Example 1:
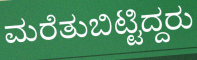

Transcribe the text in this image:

ಮರೆತುಬಿಟ್ಟಿದ್ದರು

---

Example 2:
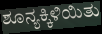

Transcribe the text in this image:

ಶೂನ್ಯಕ್ಕಿಳಿಯಿತು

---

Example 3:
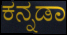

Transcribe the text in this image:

ಕನ್ನಡಾ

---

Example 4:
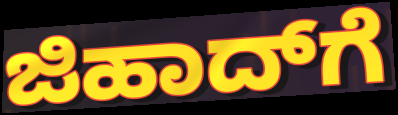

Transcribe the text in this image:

ಜಿಹಾದ್‌ಗೆ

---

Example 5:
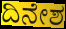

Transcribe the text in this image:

ದಿನೇಶ